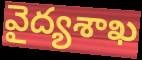
వైద్యశాఖ